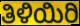
ತಿಳಿಯಿರಿ